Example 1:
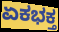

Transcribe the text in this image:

ಏಕಭಕ್ತ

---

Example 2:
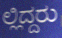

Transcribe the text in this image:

ಲ್ಲಿದ್ದರು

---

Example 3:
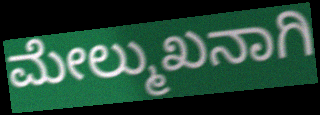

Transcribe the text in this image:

ಮೇಲ್ಮುಖನಾಗಿ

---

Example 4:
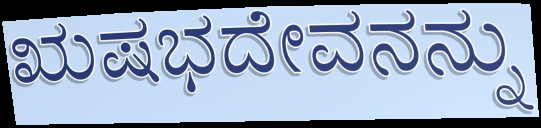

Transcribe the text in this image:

ಋಷಭದೇವನನ್ನು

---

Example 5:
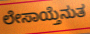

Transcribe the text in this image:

ಲೇಸಾಯ್ತೆನುತ